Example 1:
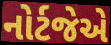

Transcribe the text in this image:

નોર્ટજેએ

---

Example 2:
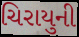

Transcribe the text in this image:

ચિરાયુની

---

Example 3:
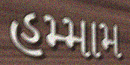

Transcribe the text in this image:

હમ્મામ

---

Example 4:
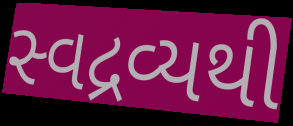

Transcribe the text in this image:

સ્વદ્રવ્યથી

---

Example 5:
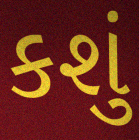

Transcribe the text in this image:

કશું